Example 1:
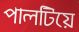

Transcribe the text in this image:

পালটিয়ে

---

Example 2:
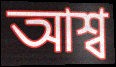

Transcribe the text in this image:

আশ্ব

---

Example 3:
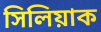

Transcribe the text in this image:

সিলিয়াক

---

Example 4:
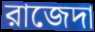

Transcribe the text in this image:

রাজেদা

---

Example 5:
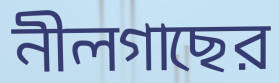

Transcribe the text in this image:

নীলগাছের